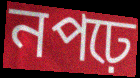
নপঢ়ে